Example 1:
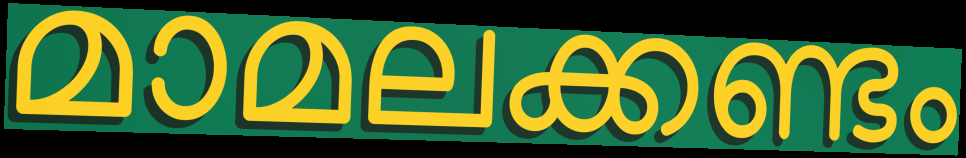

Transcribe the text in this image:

മാമലക്കണ്ടം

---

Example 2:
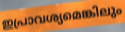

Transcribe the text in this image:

ഇപ്രാവശ്യമെങ്കിലും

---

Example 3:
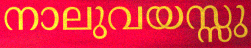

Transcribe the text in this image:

നാലുവയസ്സു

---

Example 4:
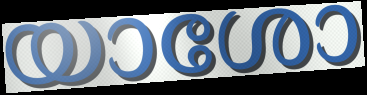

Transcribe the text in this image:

യാശോ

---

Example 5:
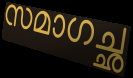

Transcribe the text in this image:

സമാഗച്ഛ